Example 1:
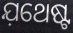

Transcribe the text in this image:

ଯ଼ଥେଷ୍ଟ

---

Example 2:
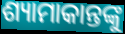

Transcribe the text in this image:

ଶ୍ୟାମାକାନ୍ତଙ୍କୁ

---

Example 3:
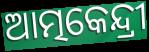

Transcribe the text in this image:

ଆତ୍ମକେନ୍ଦ୍ରୀ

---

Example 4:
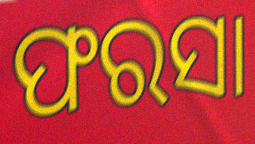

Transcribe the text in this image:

ଫରସା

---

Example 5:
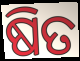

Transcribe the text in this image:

ଷିତ